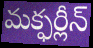
మక్ఫర్లీన్